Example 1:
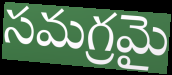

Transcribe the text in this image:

సమగ్రమై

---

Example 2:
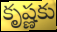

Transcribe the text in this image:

కృష్ణకు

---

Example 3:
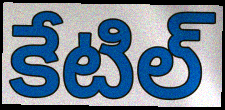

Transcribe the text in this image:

కేటిల్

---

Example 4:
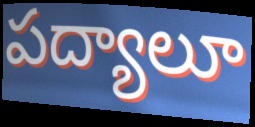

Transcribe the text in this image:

పద్యాలూ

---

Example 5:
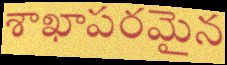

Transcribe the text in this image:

శాఖాపరమైన